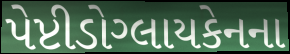
પેપ્ટીડોગ્લાયકેનના